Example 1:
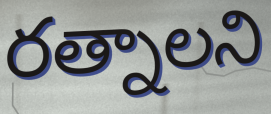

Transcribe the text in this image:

రత్నాలని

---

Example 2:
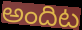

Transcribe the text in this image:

అందిట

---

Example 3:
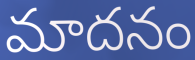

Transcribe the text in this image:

మాదనం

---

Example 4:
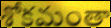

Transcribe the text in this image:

శోకమంతా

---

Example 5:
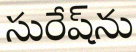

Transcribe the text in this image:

సురేష్‌ను